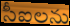
సీఐలను